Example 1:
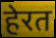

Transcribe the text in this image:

हेरत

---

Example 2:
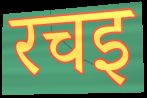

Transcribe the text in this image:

रचइ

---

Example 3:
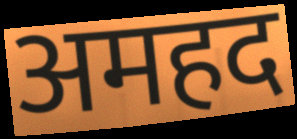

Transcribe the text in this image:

अमहद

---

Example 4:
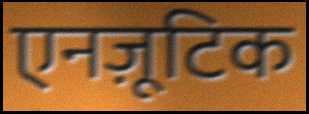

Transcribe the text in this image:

एनज़ूटिक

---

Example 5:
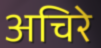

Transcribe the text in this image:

अचिरे